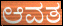
ಆವತ